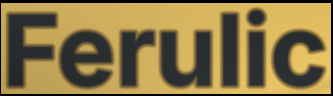
Ferulic